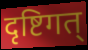
दृष्टिगत्